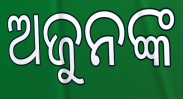
ଅଜୁନଙ୍କ